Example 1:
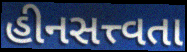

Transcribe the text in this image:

હીનસત્ત્વતા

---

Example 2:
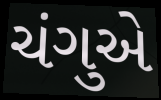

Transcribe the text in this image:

ચંગુએ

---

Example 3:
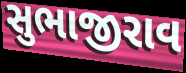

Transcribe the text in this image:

સુભાજીરાવ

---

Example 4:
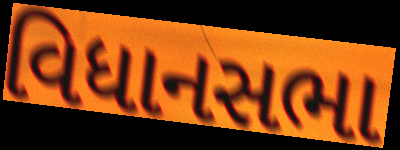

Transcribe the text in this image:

વિધાનસભા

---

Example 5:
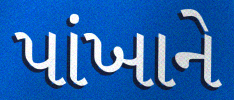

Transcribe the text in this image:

પાંખાને